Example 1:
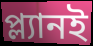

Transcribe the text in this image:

প্ল্যানই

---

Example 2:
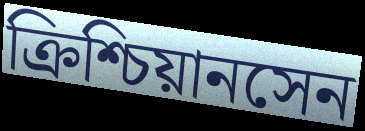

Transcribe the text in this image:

ক্রিশ্চিয়ানসেন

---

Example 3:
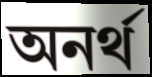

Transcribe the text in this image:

অনর্থ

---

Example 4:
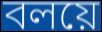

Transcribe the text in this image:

বলয়ে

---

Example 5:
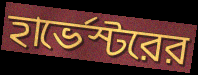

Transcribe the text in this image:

হার্ভেস্টরের